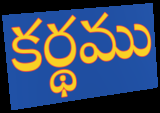
కర్థము